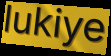
lukiye